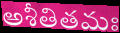
అశీతితమః